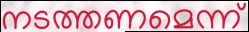
നടത്തണമെന്ന്